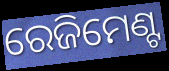
ରେଜିମେଣ୍ଟ